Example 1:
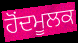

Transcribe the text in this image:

ਹੋਂਦਮੂਲਕ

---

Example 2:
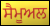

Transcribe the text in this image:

ਸੈਮੂਅਲ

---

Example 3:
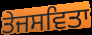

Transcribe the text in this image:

ਤੇਜਸਵਿਤਾ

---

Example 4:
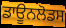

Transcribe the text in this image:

ਡਾਊਨਲੋਡਸ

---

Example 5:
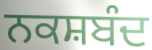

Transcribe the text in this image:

ਨਕਸ਼ਬੰਦ